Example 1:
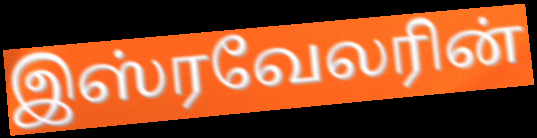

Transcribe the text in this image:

இஸ்ரவேலரின்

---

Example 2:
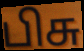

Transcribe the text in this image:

பிசு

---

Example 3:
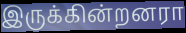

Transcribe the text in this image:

இருக்கின்றனரா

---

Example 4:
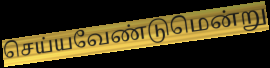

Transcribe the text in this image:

செய்யவேண்டுமென்று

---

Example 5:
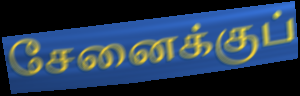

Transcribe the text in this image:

சேனைக்குப்